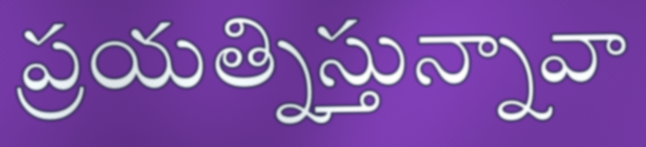
ప్రయత్నిస్తున్నావా